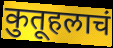
कुतूहलाचं